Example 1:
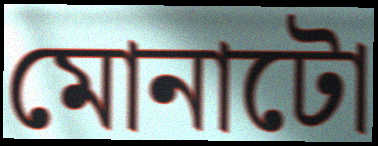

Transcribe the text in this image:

মোনাটো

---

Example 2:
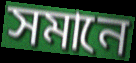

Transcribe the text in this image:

সমানে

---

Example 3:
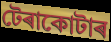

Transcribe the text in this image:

টেৰাকোটাৰ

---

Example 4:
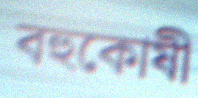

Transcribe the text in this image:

বহুকোষী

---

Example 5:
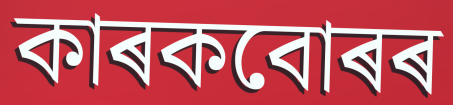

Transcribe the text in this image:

কাৰকবোৰৰ